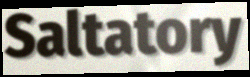
Saltatory